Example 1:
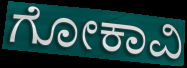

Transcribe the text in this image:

ಗೋಕಾವಿ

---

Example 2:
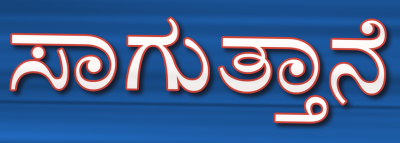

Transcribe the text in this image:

ಸಾಗುತ್ತಾನೆ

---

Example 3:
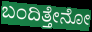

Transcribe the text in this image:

ಬಂದಿತ್ತೇನೋ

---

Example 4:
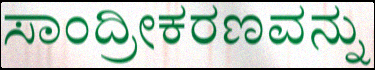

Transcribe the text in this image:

ಸಾಂದ್ರೀಕರಣವನ್ನು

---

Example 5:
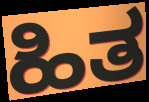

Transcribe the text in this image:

ಹಿತ